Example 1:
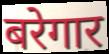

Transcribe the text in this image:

बरेगार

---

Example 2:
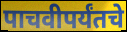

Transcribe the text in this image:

पाचवीपर्यंतचे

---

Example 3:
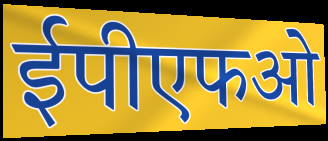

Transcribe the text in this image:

ईपीएफओ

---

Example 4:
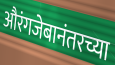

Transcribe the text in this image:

औरंगजेबानंतरच्या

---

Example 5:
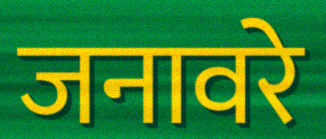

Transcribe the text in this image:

जनावरे